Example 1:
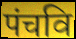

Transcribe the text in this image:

पंचवि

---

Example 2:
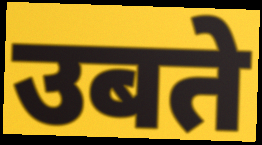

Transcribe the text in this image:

उबते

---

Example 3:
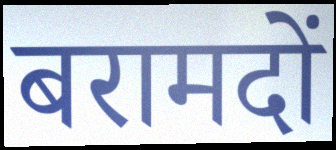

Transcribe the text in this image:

बरामदों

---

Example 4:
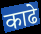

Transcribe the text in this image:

काढे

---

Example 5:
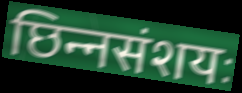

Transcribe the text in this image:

छिन्नसंशयः